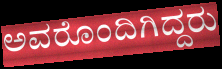
ಅವರೊಂದಿಗಿದ್ದರು